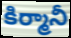
కిర్మానీ